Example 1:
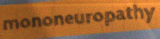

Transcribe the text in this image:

mononeuropathy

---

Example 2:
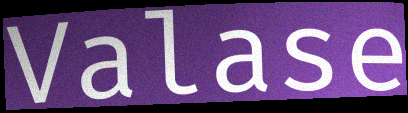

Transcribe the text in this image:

Valase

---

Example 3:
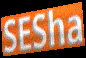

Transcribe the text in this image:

SESha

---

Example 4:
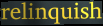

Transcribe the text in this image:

relinquish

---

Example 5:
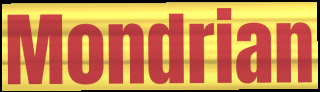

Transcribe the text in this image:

Mondrian